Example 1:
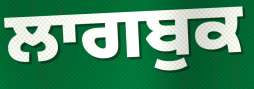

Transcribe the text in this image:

ਲਾਗਬੁਕ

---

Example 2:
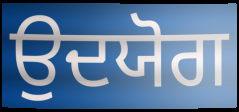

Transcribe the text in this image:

ਉਦਯੋਗ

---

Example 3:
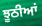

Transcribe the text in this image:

ਝੂਠੀਆਂ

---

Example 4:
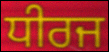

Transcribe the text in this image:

ਧੀਰਜ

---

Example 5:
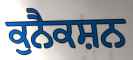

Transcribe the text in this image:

ਕੁਨੈਕਸ਼ਨ